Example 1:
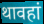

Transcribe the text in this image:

थावहां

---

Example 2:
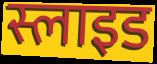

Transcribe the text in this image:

स्‍लाइड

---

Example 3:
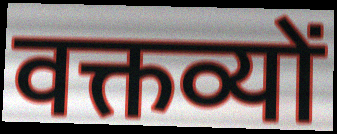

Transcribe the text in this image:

वक्तव्यों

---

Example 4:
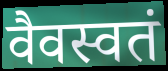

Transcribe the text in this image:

वैवस्वतं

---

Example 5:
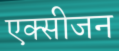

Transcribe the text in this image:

एक्सीजन